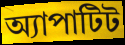
অ্যাপাটিট